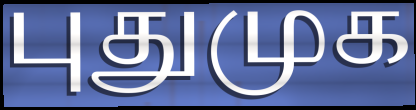
புதுமுக